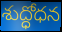
శుద్ధోధన